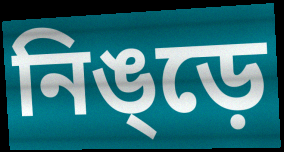
নিঙ্ড়ে